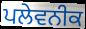
ਪਲੇਵਨੀਕ